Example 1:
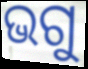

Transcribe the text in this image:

ଭଗୁ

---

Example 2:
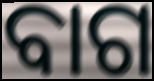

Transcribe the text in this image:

ବାଗ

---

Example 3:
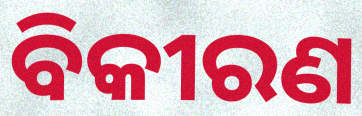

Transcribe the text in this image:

ବିକୀରଣ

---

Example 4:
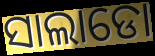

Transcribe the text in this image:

ସାଲାଡୋ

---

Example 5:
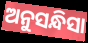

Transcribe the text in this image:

ଅନୁସନ୍ଧିସା